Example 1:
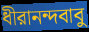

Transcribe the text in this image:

ধীরানন্দবাবু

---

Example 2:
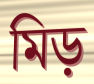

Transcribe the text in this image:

মিড়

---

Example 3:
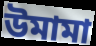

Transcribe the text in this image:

উমামা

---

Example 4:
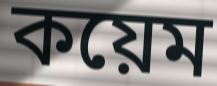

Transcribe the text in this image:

কয়েম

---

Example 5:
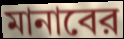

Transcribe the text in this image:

মানাবের